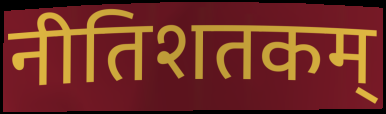
नीतिशतकम्